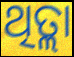
ଥିତ୍ଲା